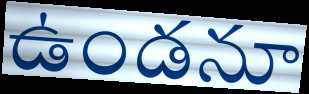
ఉండనూ